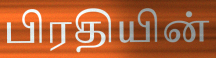
பிரதியின்